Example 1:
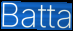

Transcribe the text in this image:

Batta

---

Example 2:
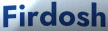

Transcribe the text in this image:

Firdosh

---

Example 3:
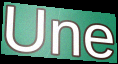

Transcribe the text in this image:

Une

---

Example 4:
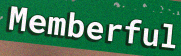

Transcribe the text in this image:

Memberful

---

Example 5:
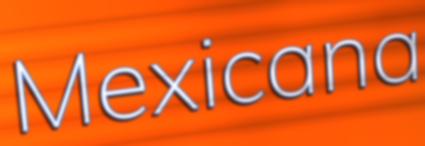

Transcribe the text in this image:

Mexicana